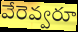
వేరెవ్వరూ